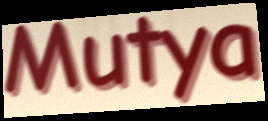
Mutya